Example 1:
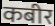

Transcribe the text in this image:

कबीर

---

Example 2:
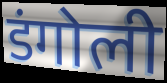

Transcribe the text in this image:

डंगोली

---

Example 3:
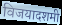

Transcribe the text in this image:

विजयादशमी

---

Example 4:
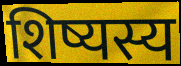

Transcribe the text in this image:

शिष्यस्य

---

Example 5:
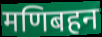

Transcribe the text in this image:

मणिबहन